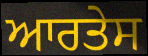
ਆਰਤੇਸ